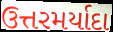
ઉત્તરમર્યાદા